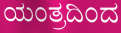
ಯಂತ್ರದಿಂದ